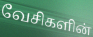
வேசிகளின்